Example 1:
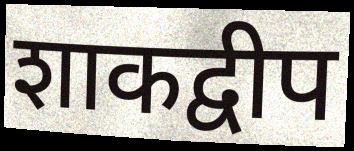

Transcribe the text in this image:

शाकद्वीप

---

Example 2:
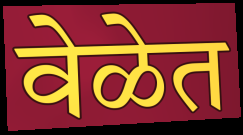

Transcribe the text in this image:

वेळेत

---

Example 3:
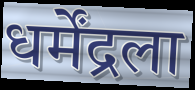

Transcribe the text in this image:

धर्मेंद्रला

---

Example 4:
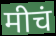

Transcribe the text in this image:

मीचं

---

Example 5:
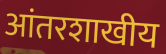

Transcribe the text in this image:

आंतरशाखीय